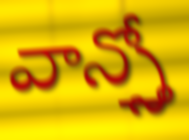
వాన్స్తో